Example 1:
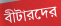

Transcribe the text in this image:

বীটারদের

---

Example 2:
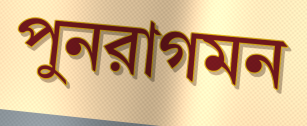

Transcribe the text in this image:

পুনরাগমন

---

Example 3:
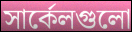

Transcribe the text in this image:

সার্কেলগুলো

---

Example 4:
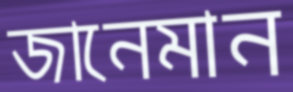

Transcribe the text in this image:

জানেমান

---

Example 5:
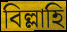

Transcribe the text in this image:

বিল্লাহি